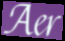
Aer